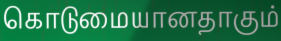
கொடுமையானதாகும்